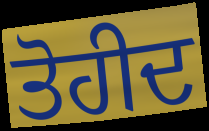
ਤੋਹੀਦ